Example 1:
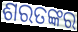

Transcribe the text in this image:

ଶରତଙ୍କର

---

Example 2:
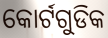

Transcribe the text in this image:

କୋର୍ଟଗୁଡିକ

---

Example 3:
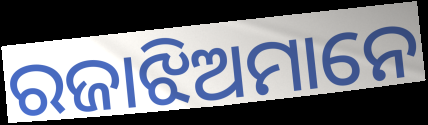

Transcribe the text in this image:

ରଜାଝିଅମାନେ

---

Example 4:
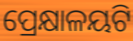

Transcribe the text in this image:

ପ୍ରେକ୍ଷାଳୟଟି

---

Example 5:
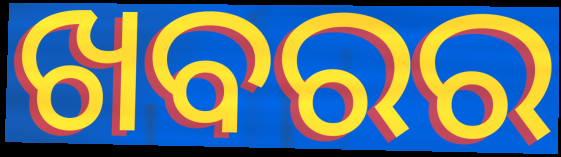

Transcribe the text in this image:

ଖବରର